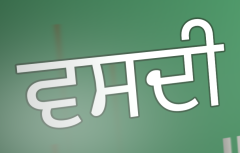
ਵਸਦੀ